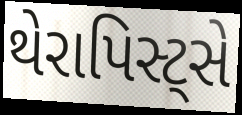
થેરાપિસ્ટ્સે